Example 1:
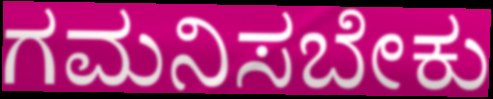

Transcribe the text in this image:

ಗಮನಿಸಬೇಕು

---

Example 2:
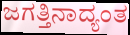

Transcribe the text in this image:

ಜಗತ್ತಿನಾದ್ಯಂತ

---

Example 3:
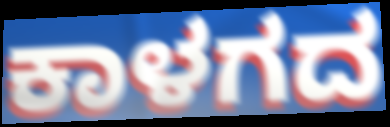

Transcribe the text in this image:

ಕಾಳಗದ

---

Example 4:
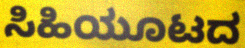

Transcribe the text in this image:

ಸಿಹಿಯೂಟದ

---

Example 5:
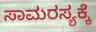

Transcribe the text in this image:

ಸಾಮರಸ್ಯಕ್ಕೆ